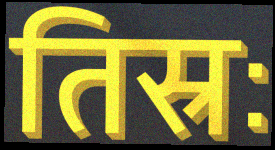
तिस्रः